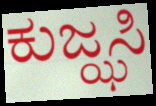
ಕುಜ್ಝಸಿ